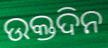
ଉକ୍ତଦିନ